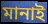
মানাই